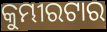
କୁମ୍ଭୀରଟାର